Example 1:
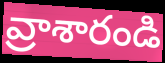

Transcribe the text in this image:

వ్రాశారండి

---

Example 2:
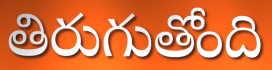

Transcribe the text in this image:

తిరుగుతోంది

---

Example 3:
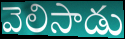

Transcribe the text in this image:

వెలిసాడు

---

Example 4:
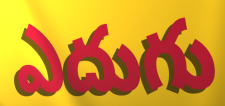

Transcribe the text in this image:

ఎదుగు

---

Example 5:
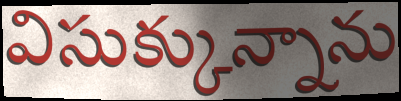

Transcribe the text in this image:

విసుక్కున్నాను